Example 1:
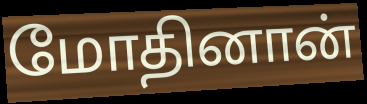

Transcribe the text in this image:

மோதினான்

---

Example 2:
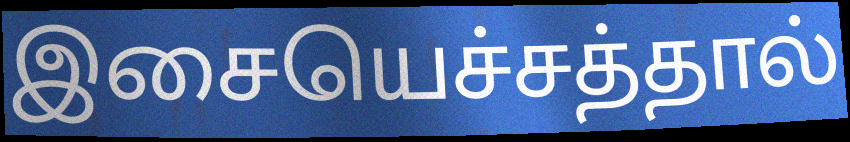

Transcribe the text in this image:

இசையெச்சத்தால்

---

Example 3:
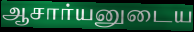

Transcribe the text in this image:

ஆசார்யனுடைய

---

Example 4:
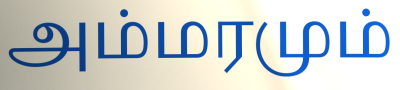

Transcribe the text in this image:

அம்மரமும்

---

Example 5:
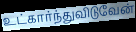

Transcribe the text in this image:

உட்கார்ந்துவிடுவேன்